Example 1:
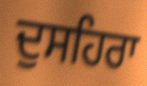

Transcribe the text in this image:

ਦੁਸਹਿਰਾ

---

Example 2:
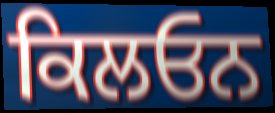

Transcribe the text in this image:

ਕਿਲਓਨ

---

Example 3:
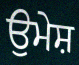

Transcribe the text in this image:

ਉਮੇਸ਼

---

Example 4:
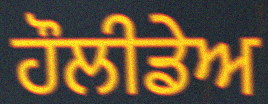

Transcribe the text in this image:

ਹੌਲੀਡੇਅ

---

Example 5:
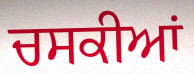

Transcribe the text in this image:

ਚਸਕੀਆਂ